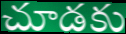
చూడకు